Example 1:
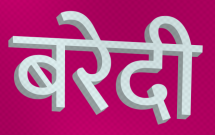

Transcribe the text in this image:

बरेदी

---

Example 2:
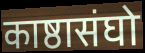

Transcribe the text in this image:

काष्ठासंघो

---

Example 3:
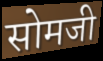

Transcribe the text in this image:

सोमजी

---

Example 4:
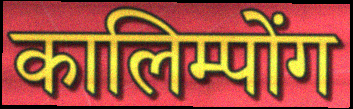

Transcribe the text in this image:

कालिम्पोंग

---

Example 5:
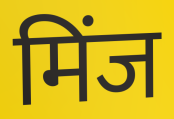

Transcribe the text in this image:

मिंज